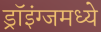
ड्रॉइंग्जमध्ये